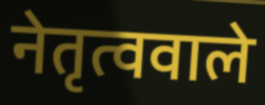
नेतृत्ववाले